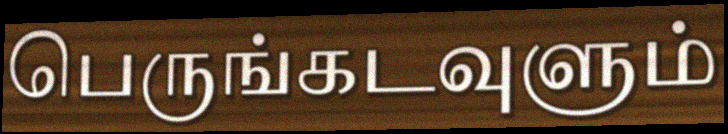
பெருங்கடவுளும்